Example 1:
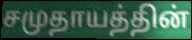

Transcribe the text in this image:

சமுதாயத்தின்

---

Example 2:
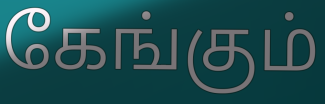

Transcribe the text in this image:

கேங்கும்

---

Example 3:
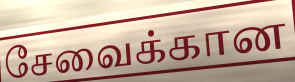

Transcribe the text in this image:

சேவைக்கான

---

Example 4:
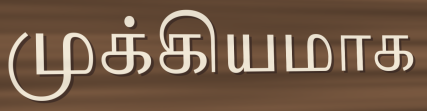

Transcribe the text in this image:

முக்கியமாக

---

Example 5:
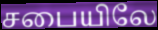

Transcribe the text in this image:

சபையிலே